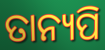
ତାନ୍ୟପି